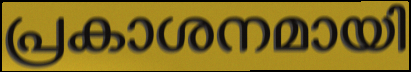
പ്രകാശനമായി